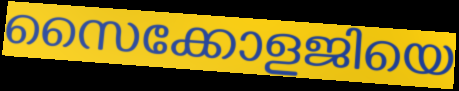
സൈക്കോളജിയെ